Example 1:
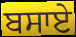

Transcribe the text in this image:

ਬਸਾਏ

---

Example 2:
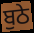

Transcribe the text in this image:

ਬੁਠੇ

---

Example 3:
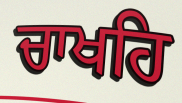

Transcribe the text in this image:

ਚਾਖਹਿ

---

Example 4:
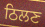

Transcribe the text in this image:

ਠਿਲਣ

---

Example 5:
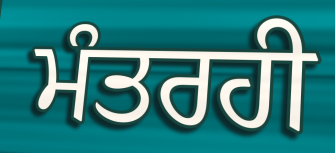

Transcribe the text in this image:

ਮੰਤਰਹੀ